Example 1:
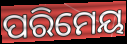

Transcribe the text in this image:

ପରିମେୟ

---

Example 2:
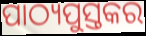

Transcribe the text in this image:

ପାଠ୍ୟପୁସ୍ତକର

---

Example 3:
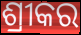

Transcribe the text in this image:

ଶ୍ରୀକର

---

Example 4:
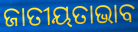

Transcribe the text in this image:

ଜାତୀୟତାଭାବ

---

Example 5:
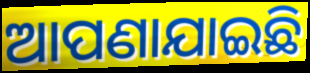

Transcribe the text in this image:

ଆପଣାଯାଇଛି